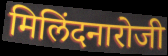
मिलिंदनारोजी